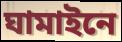
ঘামাইনে